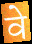
वे